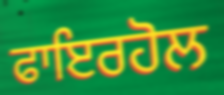
ਫਾਇਰਹੋਲ